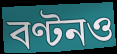
বণ্টনও